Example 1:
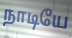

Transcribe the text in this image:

நாடியே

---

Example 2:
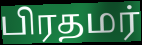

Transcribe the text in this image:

பிரதமர்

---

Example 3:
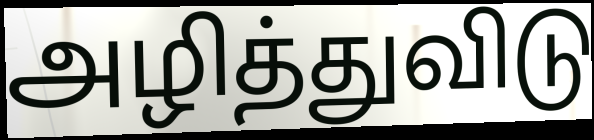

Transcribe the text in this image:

அழித்துவிடு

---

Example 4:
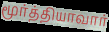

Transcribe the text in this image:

மூர்த்தியாவார்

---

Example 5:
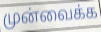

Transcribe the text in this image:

முன்வைக்க